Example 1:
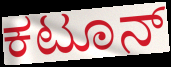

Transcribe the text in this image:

ಕಟೂನ್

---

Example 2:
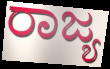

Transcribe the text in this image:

ರಾಜ್ಯ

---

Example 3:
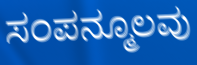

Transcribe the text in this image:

ಸಂಪನ್ಮೂಲವು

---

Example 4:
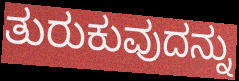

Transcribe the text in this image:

ತುರುಕುವುದನ್ನು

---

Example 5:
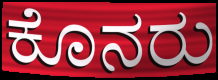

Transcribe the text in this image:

ಕೊನರು